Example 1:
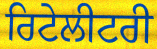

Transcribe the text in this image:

ਰਿਟੇਲੀਟਰੀ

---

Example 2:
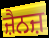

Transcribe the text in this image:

ਜ਼ੈਨਜ਼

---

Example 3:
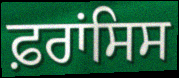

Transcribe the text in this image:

ਫ਼ਰਾਂਸਿਸ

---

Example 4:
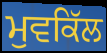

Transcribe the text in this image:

ਮੁਵਕਿੱਲ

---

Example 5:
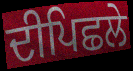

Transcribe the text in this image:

ਦੀਪਿਛਲੇ